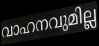
വാഹനവുമില്ല